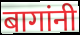
बागांनी